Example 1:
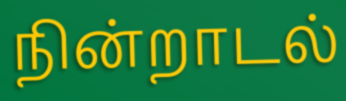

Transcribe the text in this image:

நின்றாடல்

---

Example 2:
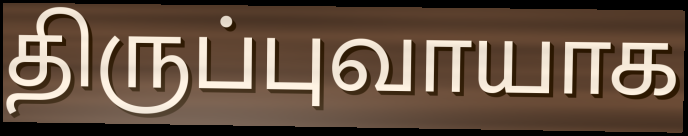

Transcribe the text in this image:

திருப்புவாயாக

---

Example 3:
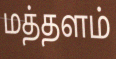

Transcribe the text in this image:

மத்தளம்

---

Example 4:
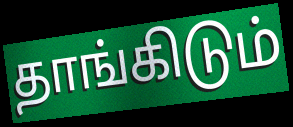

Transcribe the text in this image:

தாங்கிடும்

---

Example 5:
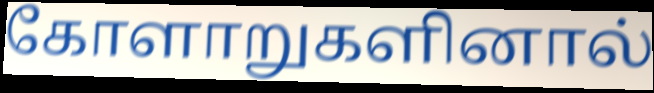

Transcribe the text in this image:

கோளாறுகளினால்